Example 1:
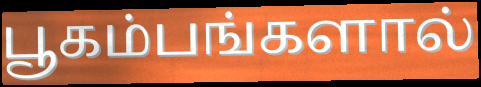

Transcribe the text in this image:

பூகம்பங்களால்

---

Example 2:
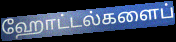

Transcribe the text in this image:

ஹோட்டல்களைப்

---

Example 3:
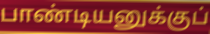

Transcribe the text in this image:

பாண்டியனுக்குப்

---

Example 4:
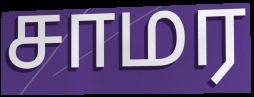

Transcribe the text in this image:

சாமர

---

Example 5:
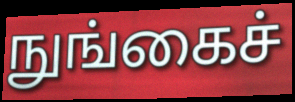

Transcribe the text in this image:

நுங்கைச்